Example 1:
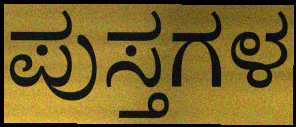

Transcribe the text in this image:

ಪುಸ್ತಗಳ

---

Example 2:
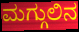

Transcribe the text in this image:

ಮಗ್ಗುಲಿನ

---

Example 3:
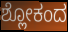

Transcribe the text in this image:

ಶ್ಲೋಕಂದ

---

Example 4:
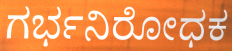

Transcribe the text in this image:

ಗರ್ಭನಿರೋಧಕ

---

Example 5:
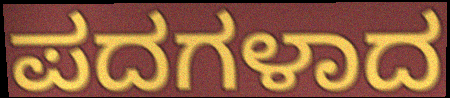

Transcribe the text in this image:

ಪದಗಳಾದ